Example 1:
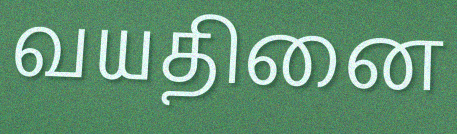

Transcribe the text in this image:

வயதினை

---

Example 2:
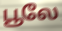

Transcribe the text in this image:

பூலே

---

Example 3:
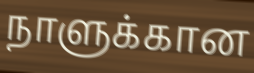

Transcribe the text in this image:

நாளுக்கான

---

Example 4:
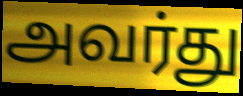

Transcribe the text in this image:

அவர்து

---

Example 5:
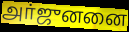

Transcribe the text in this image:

அர்ஜுனனை